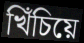
খিঁচিয়ে